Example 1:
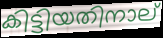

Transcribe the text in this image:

കിട്ടിയതിനാല്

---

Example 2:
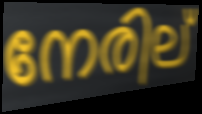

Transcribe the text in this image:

നേരില്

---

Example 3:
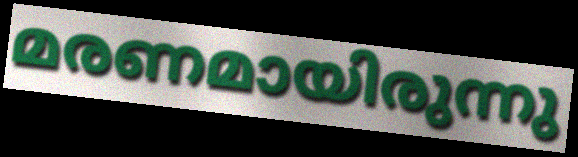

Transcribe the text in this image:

മരണമായിരുന്നു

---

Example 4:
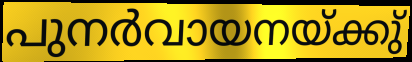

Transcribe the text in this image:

പുനർവായനയ്ക്കു്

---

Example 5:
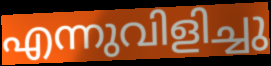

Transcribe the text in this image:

എന്നുവിളിച്ചു